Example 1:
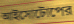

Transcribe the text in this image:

আইসোটোপের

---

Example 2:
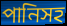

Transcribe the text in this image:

পানিসহ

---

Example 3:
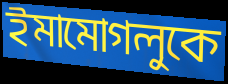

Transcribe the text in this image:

ইমামোগলুকে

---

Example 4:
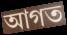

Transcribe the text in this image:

আগত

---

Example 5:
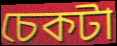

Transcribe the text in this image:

চেকটা